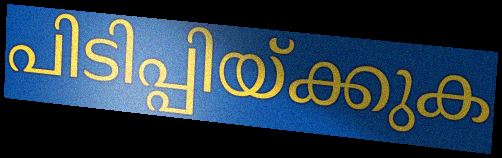
പിടിപ്പിയ്ക്കുക